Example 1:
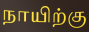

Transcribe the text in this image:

நாயிற்கு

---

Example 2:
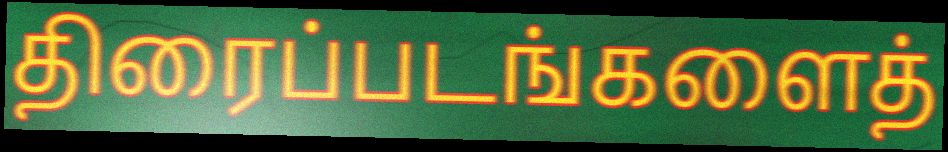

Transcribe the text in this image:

திரைப்படங்களைத்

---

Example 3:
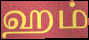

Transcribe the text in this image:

ஹம்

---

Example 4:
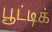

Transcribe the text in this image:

பூட்டிக்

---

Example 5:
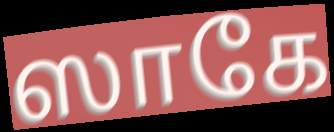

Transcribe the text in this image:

ஸாகே